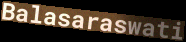
Balasaraswati